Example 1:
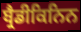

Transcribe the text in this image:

ਬ੍ਰੈਡੀਕਿਨਿਨ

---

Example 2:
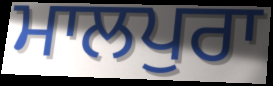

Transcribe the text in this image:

ਮਾਲਪੁਰਾ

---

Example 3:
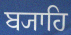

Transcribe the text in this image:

ਬ੍ਯਾਹਿ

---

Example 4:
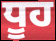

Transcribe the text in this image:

ਧੂਹ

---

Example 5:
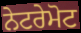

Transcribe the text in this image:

ਨੇਟਰੇਮੋਟ